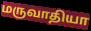
மருவாதியா